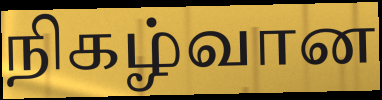
நிகழ்வான